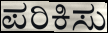
ಪರಿಕಿಸು